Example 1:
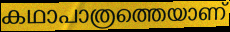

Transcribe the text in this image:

കഥാപാത്രത്തെയാണ്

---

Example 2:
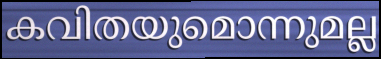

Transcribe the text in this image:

കവിതയുമൊന്നുമല്ല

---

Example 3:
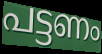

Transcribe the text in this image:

പട്ടണം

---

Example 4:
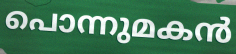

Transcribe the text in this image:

പൊന്നുമകൻ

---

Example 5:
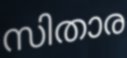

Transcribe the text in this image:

സിതാര